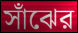
সাঁঝের